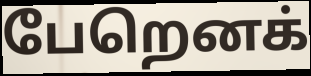
பேறெனக்